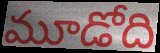
మూడోది